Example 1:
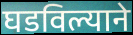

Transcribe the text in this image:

घडविल्याने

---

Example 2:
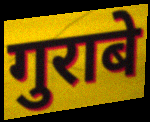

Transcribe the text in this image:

गुराबे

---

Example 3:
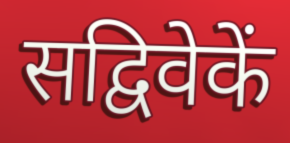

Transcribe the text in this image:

सद्विवेकें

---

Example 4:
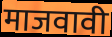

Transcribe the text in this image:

माजवावी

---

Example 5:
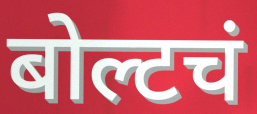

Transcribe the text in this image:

बोल्टचं